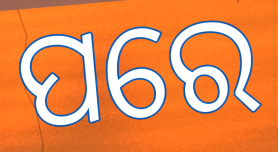
ପରେ